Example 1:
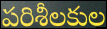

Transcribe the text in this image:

పరిశీలకుల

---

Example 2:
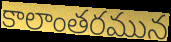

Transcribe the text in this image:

కాలాంతరమున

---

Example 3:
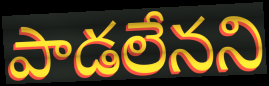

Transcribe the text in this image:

పాడలేనని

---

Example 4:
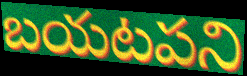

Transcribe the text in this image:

బయటపని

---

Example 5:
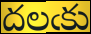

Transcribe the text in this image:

దలఁకు